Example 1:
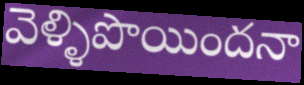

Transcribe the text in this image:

వెళ్ళిపొయిందనా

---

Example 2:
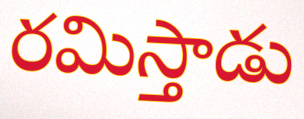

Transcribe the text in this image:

రమిస్తాడు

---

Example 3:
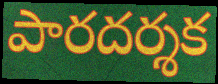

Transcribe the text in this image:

పారదర్శక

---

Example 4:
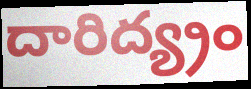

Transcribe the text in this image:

దారిద్య్రం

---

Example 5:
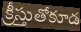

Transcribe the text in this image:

క్రీస్తుతోకూడ